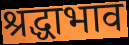
श्रद्धाभाव